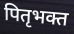
पितृभक्त